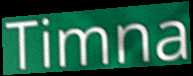
Timna